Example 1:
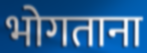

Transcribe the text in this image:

भोगताना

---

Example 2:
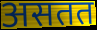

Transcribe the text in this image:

असतत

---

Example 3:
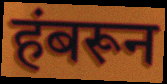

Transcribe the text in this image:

हंबरून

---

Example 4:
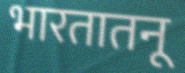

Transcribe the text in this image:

भारतातनू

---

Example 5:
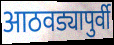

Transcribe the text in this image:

आठवड्यापुर्वी